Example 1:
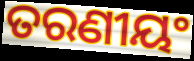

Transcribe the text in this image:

ତରଣୀୟଂ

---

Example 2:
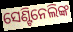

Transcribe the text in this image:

ସେଣ୍ଟିନେଲିଙ୍କ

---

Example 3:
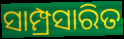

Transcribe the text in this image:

ସାମ୍ପ୍ରସାରିତ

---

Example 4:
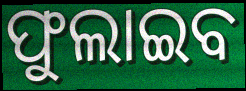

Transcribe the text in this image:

ଫୁଲାଇବ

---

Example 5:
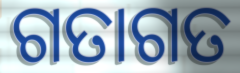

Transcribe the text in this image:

ଗତାଗତ